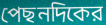
পেছনদিকের